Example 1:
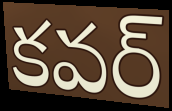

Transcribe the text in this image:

కవర్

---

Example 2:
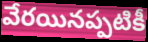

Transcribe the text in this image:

వేరయినప్పటికీ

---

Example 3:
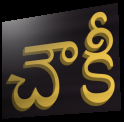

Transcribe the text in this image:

చౌకీ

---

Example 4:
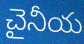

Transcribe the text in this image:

చైనీయ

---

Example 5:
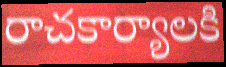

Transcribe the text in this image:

రాచకార్యాలకి